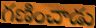
గణించాడు